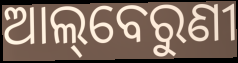
ଆଲ୍‌ବେରୁଣୀ